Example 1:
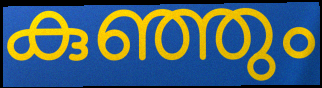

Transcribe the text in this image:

കുഞ്ഞും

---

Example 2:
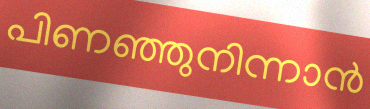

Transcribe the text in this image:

പിണഞ്ഞുനിന്നാൻ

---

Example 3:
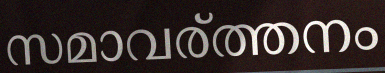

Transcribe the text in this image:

സമാവര്ത്തനം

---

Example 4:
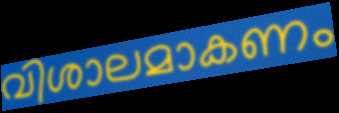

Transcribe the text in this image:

വിശാലമാകണം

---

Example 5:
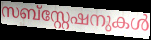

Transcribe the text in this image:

സബ്സ്റ്റേഷനുകൾ